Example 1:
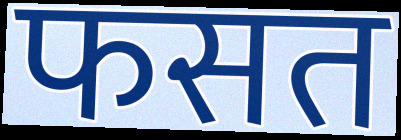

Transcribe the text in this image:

फसत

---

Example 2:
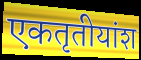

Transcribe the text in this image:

एकतृतीयांश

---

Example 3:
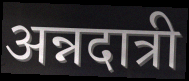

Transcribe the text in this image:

अन्नदात्री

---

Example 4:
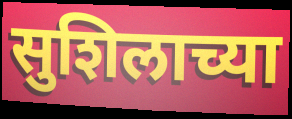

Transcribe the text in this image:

सुशिलाच्या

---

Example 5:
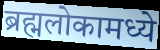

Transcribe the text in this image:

ब्रह्मलोकामध्ये